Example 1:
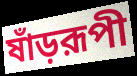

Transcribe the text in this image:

ষাঁড়রূপী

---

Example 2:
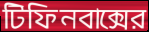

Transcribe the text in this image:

টিফিনবাক্সের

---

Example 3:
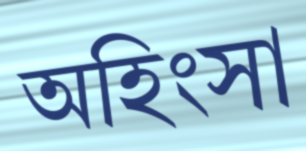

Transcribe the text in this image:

অহিংসা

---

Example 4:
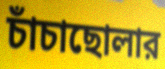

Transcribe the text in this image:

চাঁচাছোলার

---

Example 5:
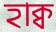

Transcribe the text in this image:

হাক্ব